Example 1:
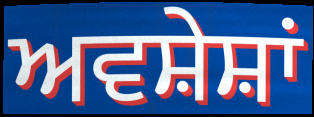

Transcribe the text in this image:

ਅਵਸ਼ੇਸ਼ਾਂ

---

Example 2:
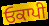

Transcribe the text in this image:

ਓਕਾਪੀ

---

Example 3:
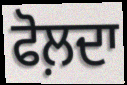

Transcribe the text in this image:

ਫੋਲ਼ਦਾ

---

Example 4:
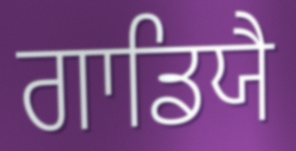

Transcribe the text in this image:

ਗਾਡਿਯੈ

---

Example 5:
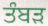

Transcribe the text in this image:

ਤੰਬੜ